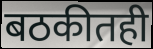
बठकीतही